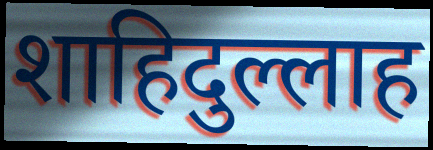
शाहिदुल्लाह